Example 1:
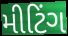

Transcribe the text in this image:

મીટિંગ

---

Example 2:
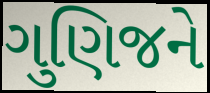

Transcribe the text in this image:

ગુણિજને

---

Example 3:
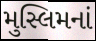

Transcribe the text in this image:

મુસ્લિમનાં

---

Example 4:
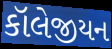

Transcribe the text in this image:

કૉલેજીયન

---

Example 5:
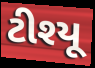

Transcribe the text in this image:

ટીશ્યૂ